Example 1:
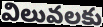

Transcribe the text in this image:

విలువలకు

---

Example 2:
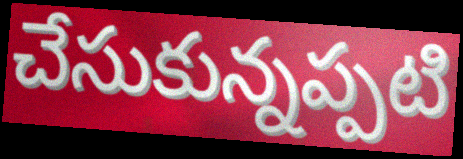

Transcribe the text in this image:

చేసుకున్నప్పటి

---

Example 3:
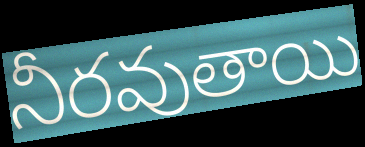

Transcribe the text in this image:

నీరవుతాయి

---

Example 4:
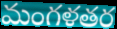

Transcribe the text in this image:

మంగళతర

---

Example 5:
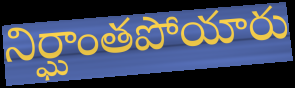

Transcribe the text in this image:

నిర్ఘాంతపోయారు